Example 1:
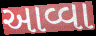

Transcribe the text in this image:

આવ્વા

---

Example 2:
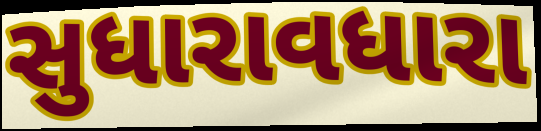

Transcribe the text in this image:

સુધારાવધારા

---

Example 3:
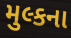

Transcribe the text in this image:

મુલ્કના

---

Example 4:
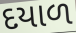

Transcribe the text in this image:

દયાળ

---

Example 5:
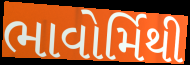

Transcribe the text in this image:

ભાવોર્મિથી